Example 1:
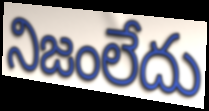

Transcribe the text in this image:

నిజంలేదు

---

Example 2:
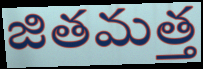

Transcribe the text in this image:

జితమత్త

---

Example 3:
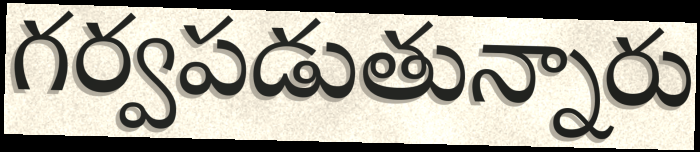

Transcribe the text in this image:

గర్వపడుతున్నారు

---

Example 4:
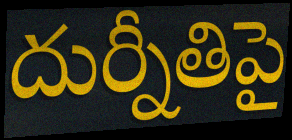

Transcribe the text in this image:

దుర్నీతిపై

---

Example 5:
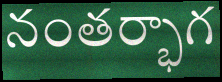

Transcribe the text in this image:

నంతర్భాగ